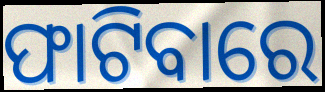
ଫାଟିବାରେ